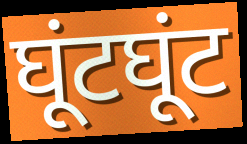
घूंटघूंट